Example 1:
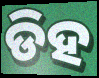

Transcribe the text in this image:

ଡିହ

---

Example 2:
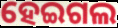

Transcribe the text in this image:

ହେଇଗଲ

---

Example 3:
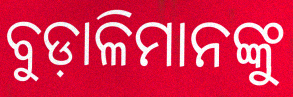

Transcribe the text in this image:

ବୁଡ଼ାଳିମାନଙ୍କୁ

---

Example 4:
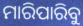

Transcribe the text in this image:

ମାରିପାରିବୁ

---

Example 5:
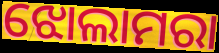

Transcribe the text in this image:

ଝୋଲାମରା